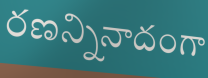
రణన్నినాదంగా